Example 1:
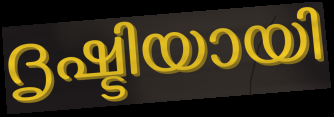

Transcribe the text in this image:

ദൃഷ്ടിയായി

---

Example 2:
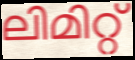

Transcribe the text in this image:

ലിമിറ്റ്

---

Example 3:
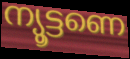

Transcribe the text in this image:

ന്യൂട്ടണെ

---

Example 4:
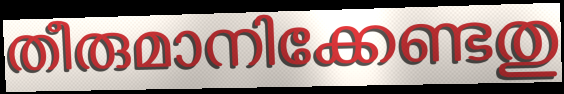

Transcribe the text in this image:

തീരുമാനിക്കേണ്ടതു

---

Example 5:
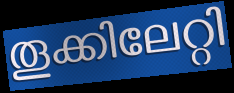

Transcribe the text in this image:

തൂക്കിലേറ്റി